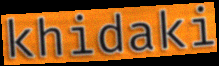
khidaki